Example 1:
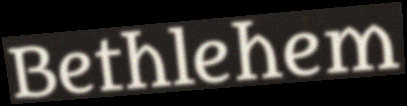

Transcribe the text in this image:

Bethlehem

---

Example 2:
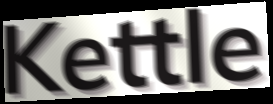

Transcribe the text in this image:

Kettle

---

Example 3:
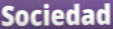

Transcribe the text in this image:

Sociedad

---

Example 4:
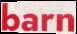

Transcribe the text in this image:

barn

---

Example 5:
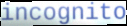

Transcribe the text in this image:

incognito